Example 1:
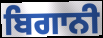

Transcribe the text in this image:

ਬਿਗਾਨੀ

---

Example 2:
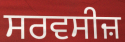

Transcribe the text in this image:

ਸਰਵਸੀਜ਼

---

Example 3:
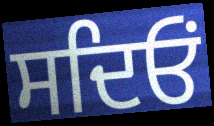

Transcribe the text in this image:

ਸਦਿਓਂ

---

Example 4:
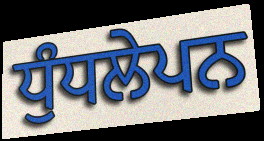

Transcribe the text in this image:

ਧੁੰਧਲੇਪਨ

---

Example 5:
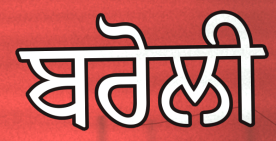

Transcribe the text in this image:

ਬਰੋਲੀ